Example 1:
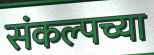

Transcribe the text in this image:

संकल्पच्या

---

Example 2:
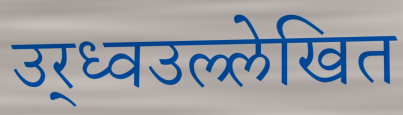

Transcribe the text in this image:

उर्ध्वउल्लेखित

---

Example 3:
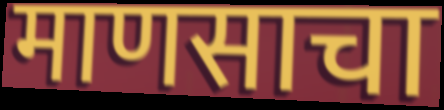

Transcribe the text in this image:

माणसाचा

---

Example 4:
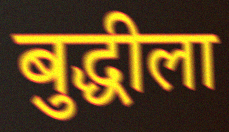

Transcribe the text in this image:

बुद्धीला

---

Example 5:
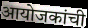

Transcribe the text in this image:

आयोजकांची